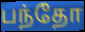
பந்தோ